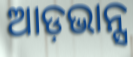
ଆଡ଼ଭାନ୍ସ